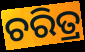
ଚରିତ୍ର